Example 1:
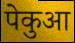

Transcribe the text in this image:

पेकुआ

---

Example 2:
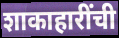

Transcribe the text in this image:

शाकाहारींची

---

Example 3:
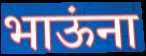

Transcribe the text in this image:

भाऊंना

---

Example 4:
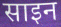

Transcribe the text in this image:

साइन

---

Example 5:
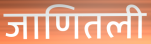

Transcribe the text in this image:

जाणितली